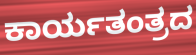
ಕಾರ್ಯತಂತ್ರದ